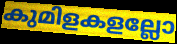
കുമിളകളല്ലോ